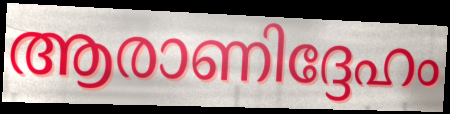
ആരാണിദ്ദേഹം